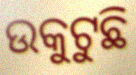
ଉକୁଟୁଛି